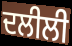
ਦਲੀਲੀ